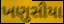
ખણુસીયા